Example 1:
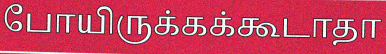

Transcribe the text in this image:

போயிருக்கக்கூடாதா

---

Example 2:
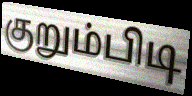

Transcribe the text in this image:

குறும்பிடி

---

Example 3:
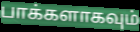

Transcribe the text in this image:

பாக்களாகவும்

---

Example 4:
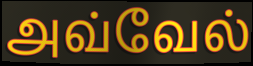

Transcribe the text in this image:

அவ்வேல்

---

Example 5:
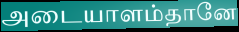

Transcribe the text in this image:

அடையாளம்தானே